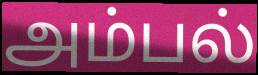
அம்பல்